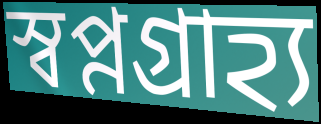
স্বপ্নগ্রাহ্য